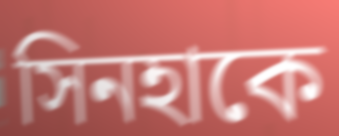
সিনহাকে